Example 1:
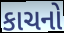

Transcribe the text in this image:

કાચનો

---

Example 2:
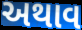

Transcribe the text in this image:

અથાવ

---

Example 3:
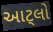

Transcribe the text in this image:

આટ્લો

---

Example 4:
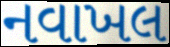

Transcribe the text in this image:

નવાખલ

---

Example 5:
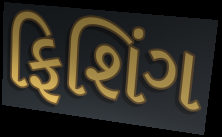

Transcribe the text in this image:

ફિશિંગ